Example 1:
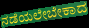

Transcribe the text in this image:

ನಡೆಯಲೇಬೇಕಾದ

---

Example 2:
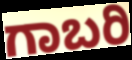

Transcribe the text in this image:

ಗಾಬರಿ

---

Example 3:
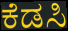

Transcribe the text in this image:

ಕೆಡಸಿ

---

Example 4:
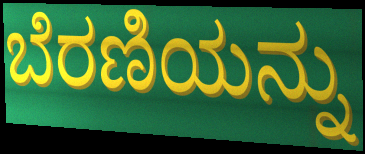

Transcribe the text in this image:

ಬೆರಣಿಯನ್ನು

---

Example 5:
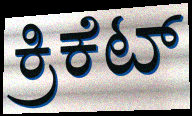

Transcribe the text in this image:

ಕ್ರಿಕೆಟ್